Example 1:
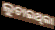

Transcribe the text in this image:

ଲୁଚାଇଥିଲା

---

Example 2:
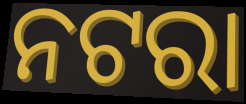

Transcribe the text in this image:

ନଟରା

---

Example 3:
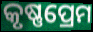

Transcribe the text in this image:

କୃଷ୍ଣପ୍ରେମ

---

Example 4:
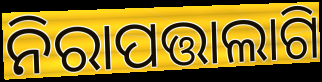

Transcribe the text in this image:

ନିରାପତ୍ତାଲାଗି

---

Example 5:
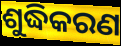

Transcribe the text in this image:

ଶୁଦ୍ଧିକରଣ